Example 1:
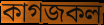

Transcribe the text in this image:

কাগজকল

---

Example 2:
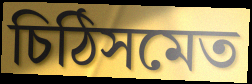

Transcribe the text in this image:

চিঠিসমেত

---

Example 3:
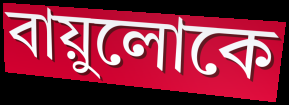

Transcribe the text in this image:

বায়ুলোকে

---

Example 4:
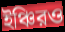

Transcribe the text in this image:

ইঞ্চিরও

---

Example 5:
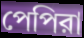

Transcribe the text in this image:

পেপিরা